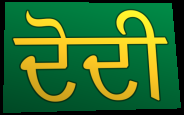
ਦੋਦੀ